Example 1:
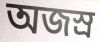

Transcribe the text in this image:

অজস্ৰ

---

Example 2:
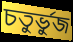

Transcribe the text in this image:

চতুৰ্ভুজ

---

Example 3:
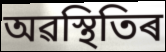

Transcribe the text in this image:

অৱস্থিতিৰ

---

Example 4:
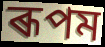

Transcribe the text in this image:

ৰূপম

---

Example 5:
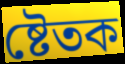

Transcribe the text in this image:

ষ্টেতক